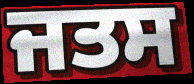
ਜਤਸ